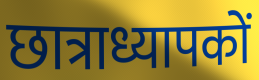
छात्राध्यापकों